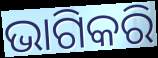
ଭାଗିକରି